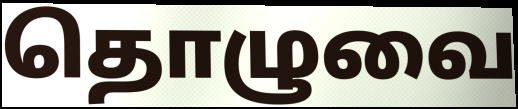
தொழுவை